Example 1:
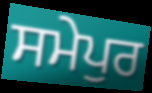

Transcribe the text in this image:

ਸਮੇਪੁਰ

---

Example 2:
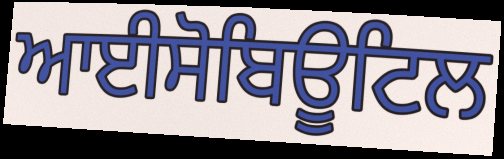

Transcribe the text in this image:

ਆਈਸੋਬਿਊਟਿਲ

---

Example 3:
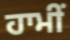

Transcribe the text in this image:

ਹਾਮੀਂ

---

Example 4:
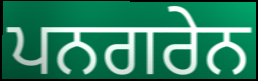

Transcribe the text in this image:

ਪਨਗਰੇਨ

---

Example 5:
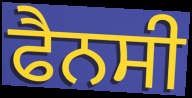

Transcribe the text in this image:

ਫੈਨਸੀ